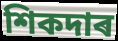
শিকদাৰ